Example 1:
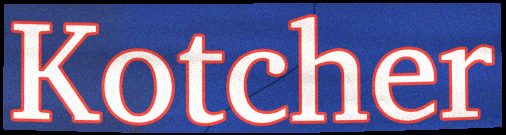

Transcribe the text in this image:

Kotcher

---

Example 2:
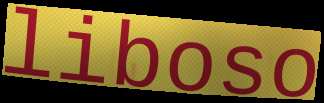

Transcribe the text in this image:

liboso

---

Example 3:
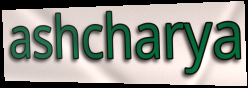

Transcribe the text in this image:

ashcharya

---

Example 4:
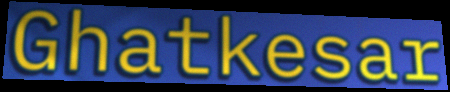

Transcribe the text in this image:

Ghatkesar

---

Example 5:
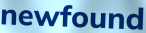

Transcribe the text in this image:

newfound